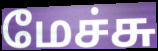
மேச்சு